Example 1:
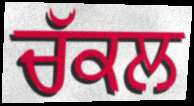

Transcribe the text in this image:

ਚੱਕਲ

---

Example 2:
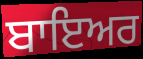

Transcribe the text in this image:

ਬਾਇਅਰ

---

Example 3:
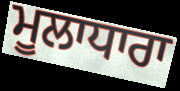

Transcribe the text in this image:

ਮੂਲਾਧਾਰਾ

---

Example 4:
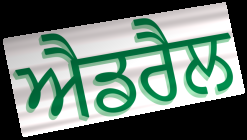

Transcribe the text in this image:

ਐਡਰੈਲ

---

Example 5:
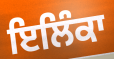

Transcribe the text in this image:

ਇਲਿੰਕਾ